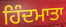
ਹਿੰਦਮਾਤਾ